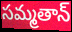
సమ్మతాన్